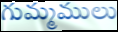
గుమ్మములు